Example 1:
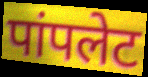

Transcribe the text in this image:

पांपलेट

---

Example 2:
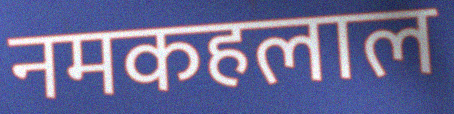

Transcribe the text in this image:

नमकहलाल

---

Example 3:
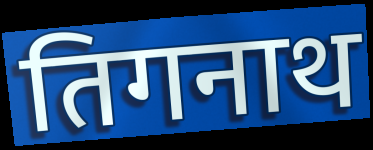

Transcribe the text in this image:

तिगनाथ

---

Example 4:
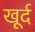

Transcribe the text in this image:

खूर्द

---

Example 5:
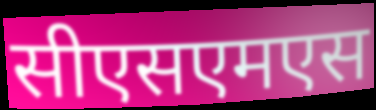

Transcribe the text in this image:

सीएसएमएस